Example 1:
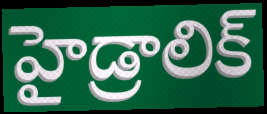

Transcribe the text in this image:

హైడ్రాలిక్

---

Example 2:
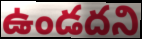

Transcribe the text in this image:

ఉండదని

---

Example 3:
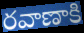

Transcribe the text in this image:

రవాణాకి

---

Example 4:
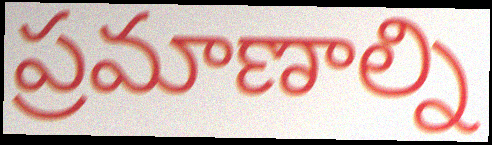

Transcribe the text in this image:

ప్రమాణాల్ని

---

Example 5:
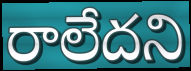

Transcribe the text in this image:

రాలేదని